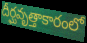
దీర్ఘవృత్తాకారంలో